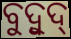
ବୁଦ୍ବୁଦ୍